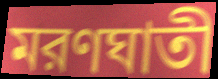
মরণঘাতী